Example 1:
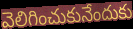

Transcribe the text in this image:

వెలిగించుకునేందుకు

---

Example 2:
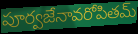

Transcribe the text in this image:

పూర్వజేనావరోపితమ్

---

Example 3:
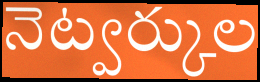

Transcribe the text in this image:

నెట్వర్కుల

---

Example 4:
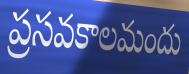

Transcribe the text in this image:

ప్రసవకాలమందు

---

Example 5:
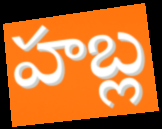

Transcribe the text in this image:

హబ్ల